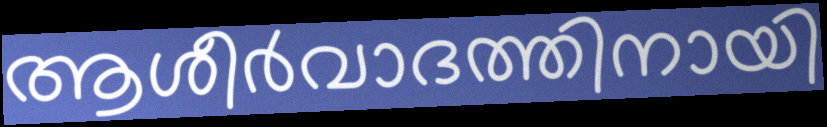
ആശീർവാദത്തിനായി